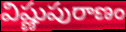
విష్ణుపురాణం